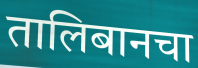
तालिबानचा